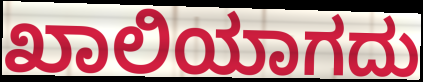
ಖಾಲಿಯಾಗದು